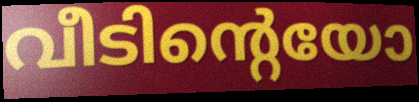
വീടിന്റെയോ